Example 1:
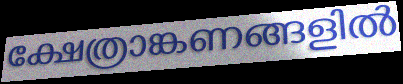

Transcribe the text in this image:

ക്ഷേത്രാങ്കണങ്ങളിൽ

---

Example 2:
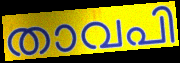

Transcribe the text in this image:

താവപി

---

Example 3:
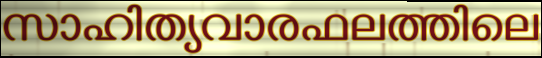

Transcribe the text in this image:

സാഹിത്യവാരഫലത്തിലെ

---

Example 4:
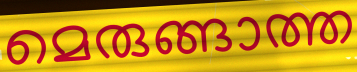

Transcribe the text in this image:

മെരുങ്ങാത്ത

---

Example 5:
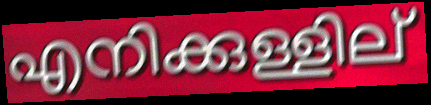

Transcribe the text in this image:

എനിക്കുള്ളില്